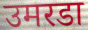
उमरडा